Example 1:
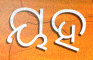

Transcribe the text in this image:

ୟହ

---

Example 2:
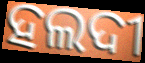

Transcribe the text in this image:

ହଲଦୀ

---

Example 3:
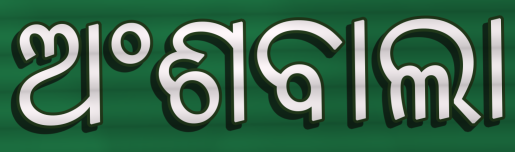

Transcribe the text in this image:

ଅଂଶବାଲା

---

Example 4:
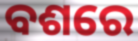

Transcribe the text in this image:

ବଶରେ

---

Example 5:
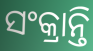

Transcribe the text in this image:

ସଂକ୍ରାନ୍ତି